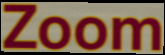
Zoom